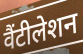
वैंटीलेशन